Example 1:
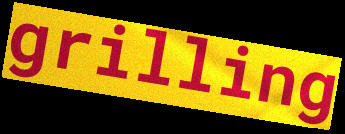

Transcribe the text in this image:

grilling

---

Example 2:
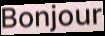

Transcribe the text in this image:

Bonjour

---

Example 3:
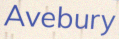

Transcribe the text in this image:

Avebury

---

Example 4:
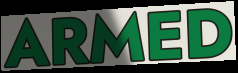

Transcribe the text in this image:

ARMED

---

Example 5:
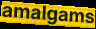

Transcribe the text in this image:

amalgams